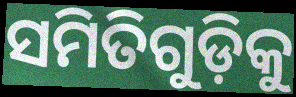
ସମିତିଗୁଡ଼ିକୁ